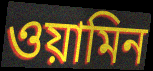
ওয়ামিন